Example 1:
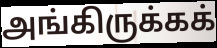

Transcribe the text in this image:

அங்கிருக்கக்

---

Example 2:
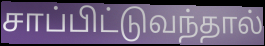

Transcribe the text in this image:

சாப்பிட்டுவந்தால்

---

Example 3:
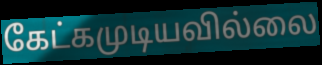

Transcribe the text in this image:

கேட்கமுடியவில்லை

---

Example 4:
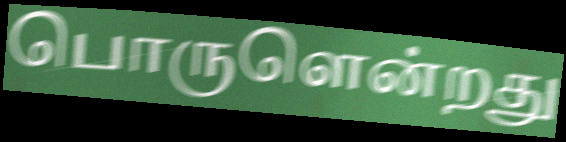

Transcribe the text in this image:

பொருளென்றது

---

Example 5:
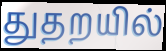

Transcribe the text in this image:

துதறயில்